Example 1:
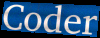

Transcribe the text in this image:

Coder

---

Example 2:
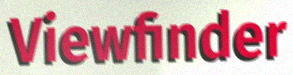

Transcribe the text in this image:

Viewfinder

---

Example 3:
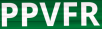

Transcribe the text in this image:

PPVFR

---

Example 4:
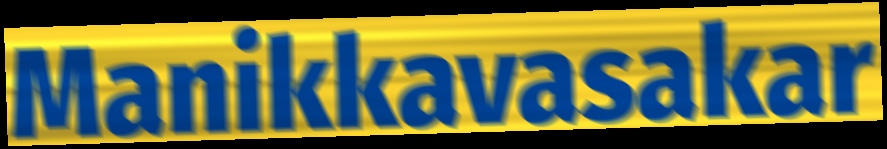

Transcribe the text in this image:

Manikkavasakar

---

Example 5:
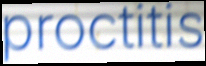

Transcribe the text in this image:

proctitis